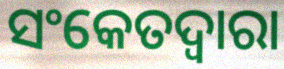
ସଂକେତଦ୍ଵାରା